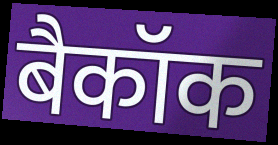
बैकॉक